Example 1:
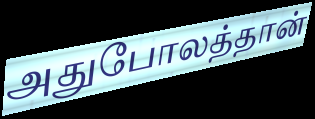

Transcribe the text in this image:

அதுபோலத்தான்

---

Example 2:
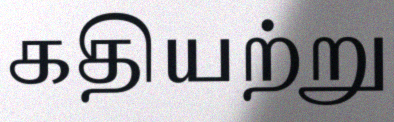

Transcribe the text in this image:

கதியற்று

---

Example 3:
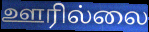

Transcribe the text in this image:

ஊரில்லை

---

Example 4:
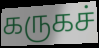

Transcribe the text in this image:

கருகச்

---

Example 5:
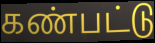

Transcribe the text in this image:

கண்பட்டு